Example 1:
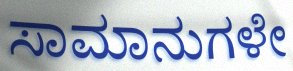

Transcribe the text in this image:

ಸಾಮಾನುಗಳೇ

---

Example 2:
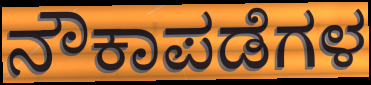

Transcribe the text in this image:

ನೌಕಾಪಡೆಗಳ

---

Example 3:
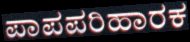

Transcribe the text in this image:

ಪಾಪಪರಿಹಾರಕ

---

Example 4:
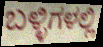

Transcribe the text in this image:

ಬಳ್ಳಿಗಳಲ್ಲಿ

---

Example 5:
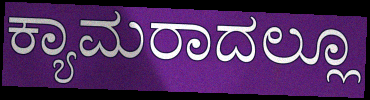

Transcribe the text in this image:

ಕ್ಯಾಮರಾದಲ್ಲೂ